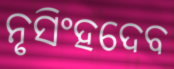
ନୃସିଂହଦେବ